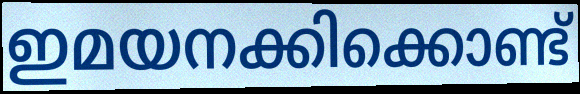
ഇമയനക്കിക്കൊണ്ട്